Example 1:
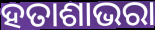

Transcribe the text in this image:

ହତାଶାଭରା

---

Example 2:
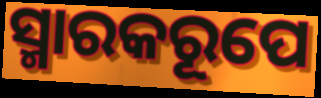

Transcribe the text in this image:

ସ୍ମାରକରୂପେ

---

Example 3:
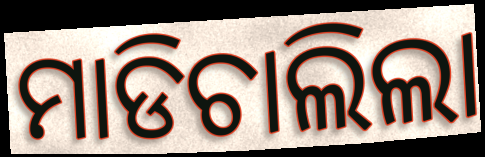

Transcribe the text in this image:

ମାଡିଚାଲିଲା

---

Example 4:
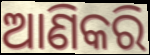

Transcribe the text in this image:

ଆଣିକରି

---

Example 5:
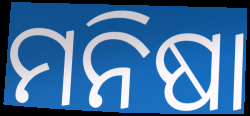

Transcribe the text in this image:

ମନିଷା